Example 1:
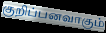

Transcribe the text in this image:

குறிப்பனவாகும்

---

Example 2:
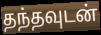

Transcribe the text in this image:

தந்தவுடன்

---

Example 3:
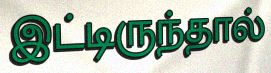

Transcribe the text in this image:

இட்டிருந்தால்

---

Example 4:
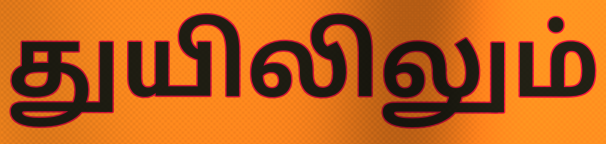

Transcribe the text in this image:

துயிலிலும்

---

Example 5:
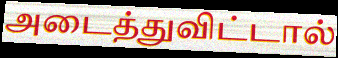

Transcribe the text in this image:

அடைத்துவிட்டால்